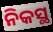
ନିକସ୍ଥ